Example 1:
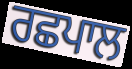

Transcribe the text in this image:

ਰਛਪਾਲ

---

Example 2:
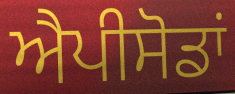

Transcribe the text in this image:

ਐਪੀਸੋਡਾਂ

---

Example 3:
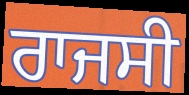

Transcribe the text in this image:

ਰਾਜਸੀ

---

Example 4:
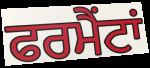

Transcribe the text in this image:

ਫਰਮੈਂਟਾਂ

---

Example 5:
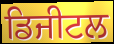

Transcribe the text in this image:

ਡਿਜੀਟਲ